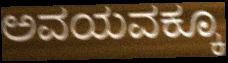
ಅವಯವಕ್ಕೂ